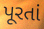
પૂરતાં